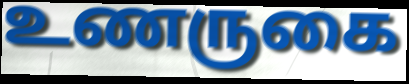
உணருகை